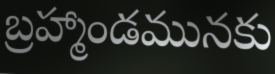
బ్రహ్మాండమునకు